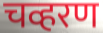
चव्हरण